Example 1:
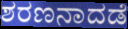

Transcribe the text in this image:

ಶರಣನಾದಡೆ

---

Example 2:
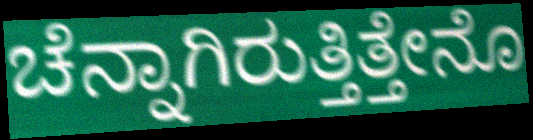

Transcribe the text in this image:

ಚೆನ್ನಾಗಿರುತ್ತಿತ್ತೇನೊ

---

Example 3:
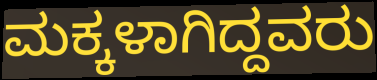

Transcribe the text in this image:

ಮಕ್ಕಳಾಗಿದ್ದವರು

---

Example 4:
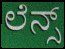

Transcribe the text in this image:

ಲೆನ್ಸ್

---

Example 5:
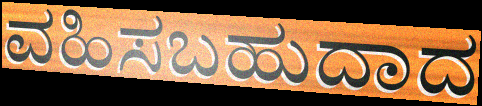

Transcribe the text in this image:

ವಹಿಸಬಹುದಾದ